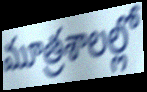
మూత్రశాలల్లో